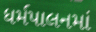
ધર્મપાલનમાં